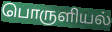
பொருளியல்